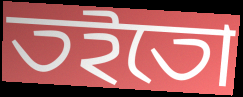
তইতো